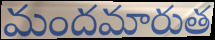
మందమారుత